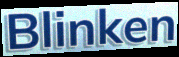
Blinken